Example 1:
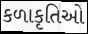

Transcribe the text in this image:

કળાકૃતિઓ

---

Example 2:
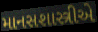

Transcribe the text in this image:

માનસશાસ્ત્રીએ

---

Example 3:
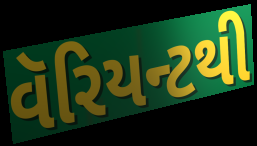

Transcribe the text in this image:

વૅરિયન્ટથી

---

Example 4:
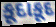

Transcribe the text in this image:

કૂદાકૂદ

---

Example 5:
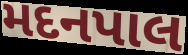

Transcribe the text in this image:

મદનપાલ